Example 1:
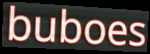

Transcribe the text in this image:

buboes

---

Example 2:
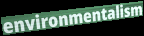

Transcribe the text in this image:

environmentalism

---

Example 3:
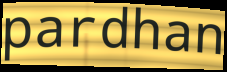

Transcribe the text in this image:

pardhan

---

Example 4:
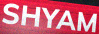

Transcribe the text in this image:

SHYAM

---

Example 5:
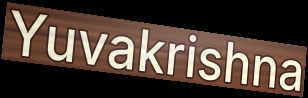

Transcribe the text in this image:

Yuvakrishna